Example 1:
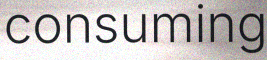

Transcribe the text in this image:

consuming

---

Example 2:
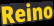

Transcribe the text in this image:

Reino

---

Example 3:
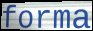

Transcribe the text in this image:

forma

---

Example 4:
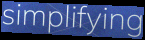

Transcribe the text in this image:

simplifying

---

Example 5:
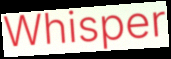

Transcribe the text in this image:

Whisper